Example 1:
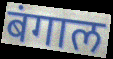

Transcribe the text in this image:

बंगाल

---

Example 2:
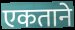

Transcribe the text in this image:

एकताने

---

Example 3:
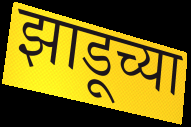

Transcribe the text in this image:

झाडूच्या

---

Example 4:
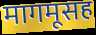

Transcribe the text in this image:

मागमूसह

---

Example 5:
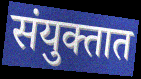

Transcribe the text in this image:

संयुक्तात